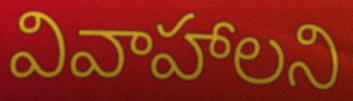
వివాహాలని